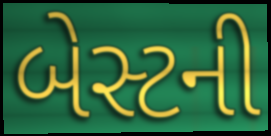
બેસ્ટની